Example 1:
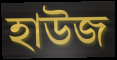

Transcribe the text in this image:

হাউজ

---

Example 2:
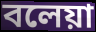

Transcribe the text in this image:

বলেয়া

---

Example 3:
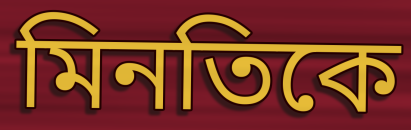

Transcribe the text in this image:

মিনতিকে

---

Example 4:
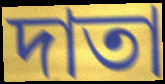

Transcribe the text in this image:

দাতা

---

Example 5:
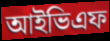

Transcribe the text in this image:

আইভিএফ